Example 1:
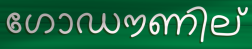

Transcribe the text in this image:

ഗോഡൗണില്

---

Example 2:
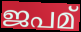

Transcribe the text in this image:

ജപമ്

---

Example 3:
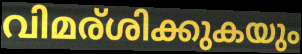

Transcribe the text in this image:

വിമര്ശിക്കുകയും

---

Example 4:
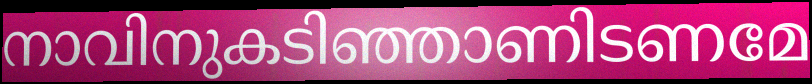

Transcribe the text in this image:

നാവിനുകടിഞ്ഞാണിടണമേ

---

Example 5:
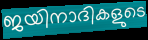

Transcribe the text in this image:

ജയിനാദികളുടെ